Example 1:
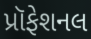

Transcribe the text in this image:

પ્રૉફેશનલ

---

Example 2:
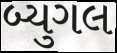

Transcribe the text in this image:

બ્યુગલ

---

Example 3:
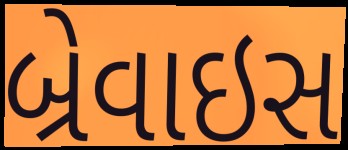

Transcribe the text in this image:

બ્રેવાઇસ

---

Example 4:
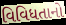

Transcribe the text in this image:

વિવિધતાનો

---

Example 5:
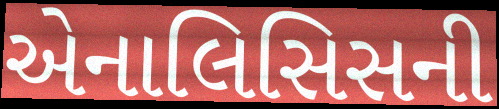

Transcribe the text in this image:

એનાલિસિસની